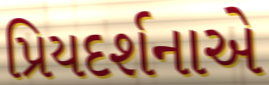
પ્રિયદર્શનાએ